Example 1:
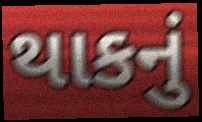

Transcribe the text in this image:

થાકનું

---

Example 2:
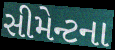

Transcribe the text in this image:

સીમેન્ટના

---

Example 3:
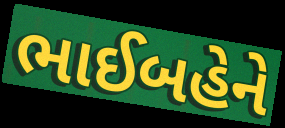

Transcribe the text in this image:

ભાઈબહેને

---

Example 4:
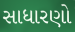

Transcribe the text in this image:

સાધારણો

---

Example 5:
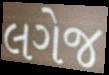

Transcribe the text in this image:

લગેજ